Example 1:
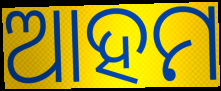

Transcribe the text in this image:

ଆହମ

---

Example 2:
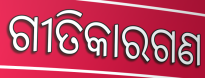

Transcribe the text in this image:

ଗୀତିକାରଗଣ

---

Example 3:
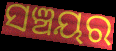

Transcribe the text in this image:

ସଞ୍ଚୟର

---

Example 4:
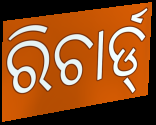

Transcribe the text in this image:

ରିଚାର୍ଡ୍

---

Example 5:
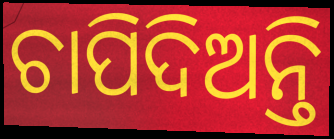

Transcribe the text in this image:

ଚାପିଦିଅନ୍ତି